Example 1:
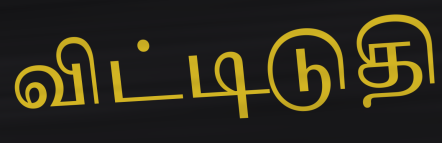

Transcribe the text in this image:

விட்டிடுதி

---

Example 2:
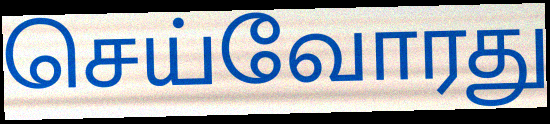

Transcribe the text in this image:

செய்வோரது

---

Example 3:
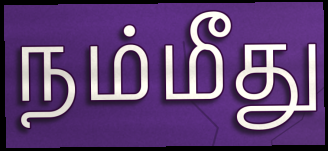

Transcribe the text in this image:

நம்மீது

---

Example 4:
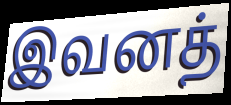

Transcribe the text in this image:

இவனத்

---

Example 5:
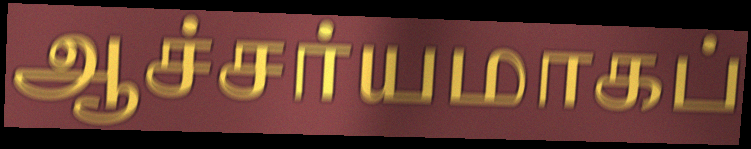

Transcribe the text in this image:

ஆச்சர்யமாகப்